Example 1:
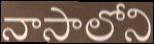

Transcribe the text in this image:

నాసాలోని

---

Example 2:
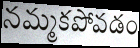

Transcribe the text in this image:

నమ్మకపోవడం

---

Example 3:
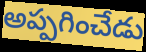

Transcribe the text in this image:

అప్పగించేడు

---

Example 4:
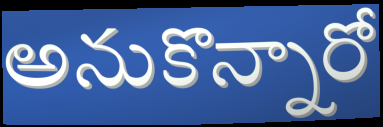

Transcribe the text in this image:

అనుకొన్నారో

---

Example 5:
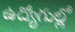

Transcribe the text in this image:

ఉద్యోగుల్లో